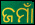
ଜମାଁ